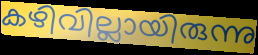
കഴിവില്ലായിരുന്നു